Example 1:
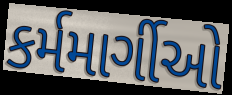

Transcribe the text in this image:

કર્મમાર્ગીઓ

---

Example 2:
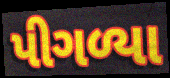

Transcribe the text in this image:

પીગળ્યા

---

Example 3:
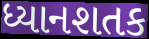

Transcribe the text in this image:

ધ્યાનશતક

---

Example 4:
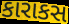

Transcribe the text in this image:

કારાકસ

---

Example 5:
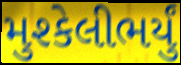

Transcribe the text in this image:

મુશ્કેલીભર્યું